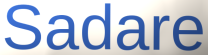
Sadare